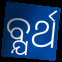
ବ୍ଯର୍ଥ